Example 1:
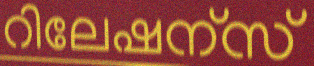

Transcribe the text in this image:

റിലേഷന്സ്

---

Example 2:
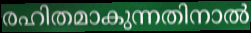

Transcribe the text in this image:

രഹിതമാകുന്നതിനാൽ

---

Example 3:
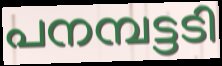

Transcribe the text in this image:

പനമ്പട്ടടി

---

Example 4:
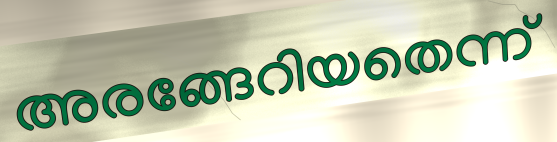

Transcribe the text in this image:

അരങ്ങേറിയതെന്ന്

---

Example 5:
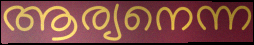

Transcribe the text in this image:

ആര്യനെന്ന